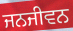
ਜਨਜੀਵਨ